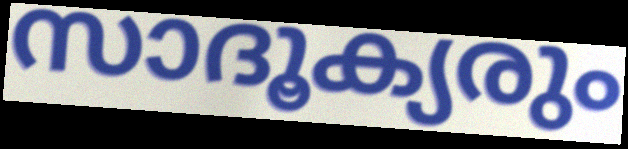
സാദൂക്യരും